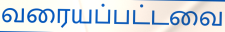
வரையப்பட்டவை